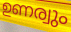
ഉണര്വും